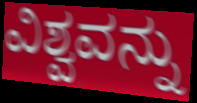
ವಿಶ್ವವನ್ನು